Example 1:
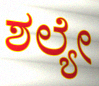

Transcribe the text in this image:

ಶಲ್ಯೇ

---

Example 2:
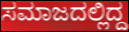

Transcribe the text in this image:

ಸಮಾಜದಲ್ಲಿದ್ದ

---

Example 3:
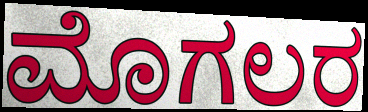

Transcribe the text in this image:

ಮೊಗಲರ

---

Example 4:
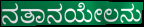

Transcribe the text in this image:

ನತಾನಯೇಲನು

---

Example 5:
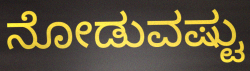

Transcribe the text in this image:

ನೋಡುವಷ್ಟು